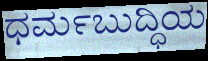
ಧರ್ಮಬುದ್ಧಿಯ